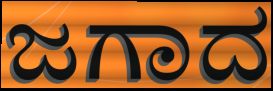
ಜಗಾದ